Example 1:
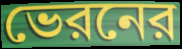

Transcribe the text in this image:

ভেরনের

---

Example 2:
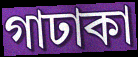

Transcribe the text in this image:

গাঢাকা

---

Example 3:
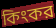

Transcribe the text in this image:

কিংকর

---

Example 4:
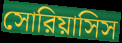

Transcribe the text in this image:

সোরিয়াসিস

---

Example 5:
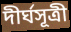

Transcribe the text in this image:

দীর্ঘসূত্রী